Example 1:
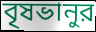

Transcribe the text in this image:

বৃষভানুর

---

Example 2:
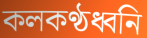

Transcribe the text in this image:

কলকণ্ঠধ্বনি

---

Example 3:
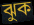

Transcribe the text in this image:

ঝুক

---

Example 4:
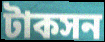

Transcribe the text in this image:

টাকসন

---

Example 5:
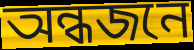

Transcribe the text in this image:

অন্ধজনে